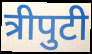
त्रीपुटी